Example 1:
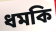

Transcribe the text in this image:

ধমকি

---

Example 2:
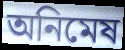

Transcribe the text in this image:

অনিমেষ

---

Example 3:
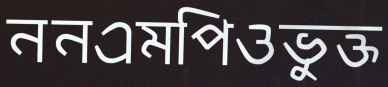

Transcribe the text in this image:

ননএমপিওভুক্ত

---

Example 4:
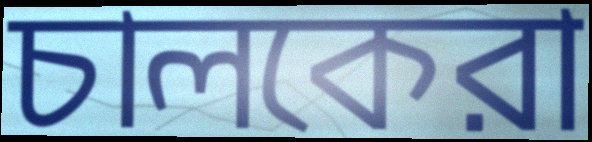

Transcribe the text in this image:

চালকেরা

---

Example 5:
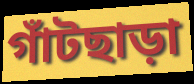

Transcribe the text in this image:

গাঁটছাড়া